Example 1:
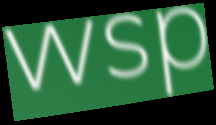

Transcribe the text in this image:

wsp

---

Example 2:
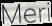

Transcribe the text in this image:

Meri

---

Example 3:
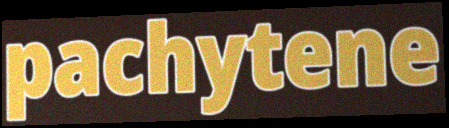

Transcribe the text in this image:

pachytene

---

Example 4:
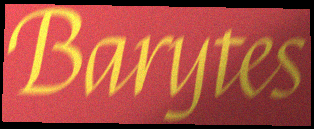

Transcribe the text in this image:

Barytes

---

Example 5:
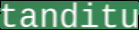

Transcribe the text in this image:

tanditu